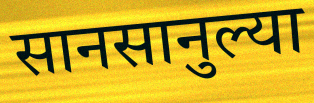
सानसानुल्या